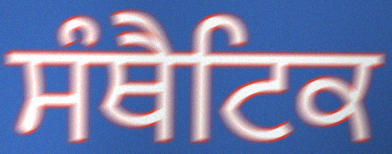
ਸੰਥੈਟਿਕ